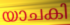
യാചകി